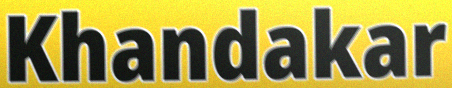
Khandakar